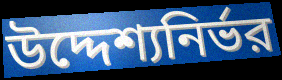
উদ্দেশ্যনির্ভর